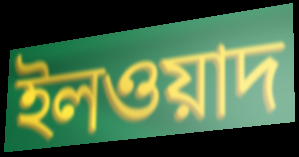
ইলওয়াদ